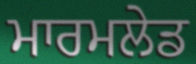
ਮਾਰਮਲੇਡ